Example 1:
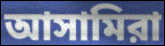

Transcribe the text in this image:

আসামিরা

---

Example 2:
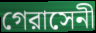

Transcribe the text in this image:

গেরাসেনী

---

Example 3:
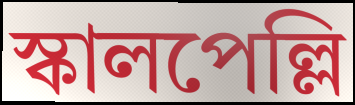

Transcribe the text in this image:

স্কালপেল্লি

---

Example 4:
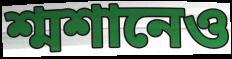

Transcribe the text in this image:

শ্মশানেও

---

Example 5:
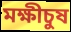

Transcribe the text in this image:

মক্ষীচুষ